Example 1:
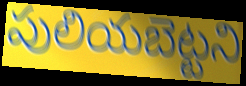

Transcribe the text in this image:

పులియబెట్టని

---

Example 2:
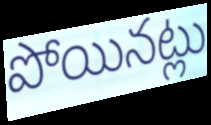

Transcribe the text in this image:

పోయినట్లు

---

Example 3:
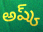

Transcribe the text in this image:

అష్క్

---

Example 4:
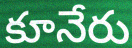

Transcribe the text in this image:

కూనేరు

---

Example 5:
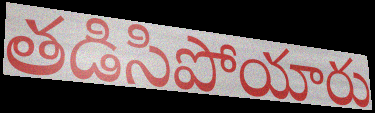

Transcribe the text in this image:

తడిసిపోయారు